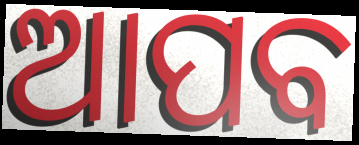
ଆପବ